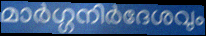
മാർഗ്ഗനിർദേശവും